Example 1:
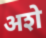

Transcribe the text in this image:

अशे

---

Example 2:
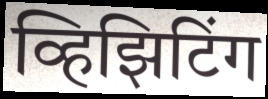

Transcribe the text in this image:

व्हिझिटिंग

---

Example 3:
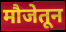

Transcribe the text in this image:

मौजेतून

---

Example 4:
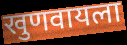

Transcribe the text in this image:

खुणवायला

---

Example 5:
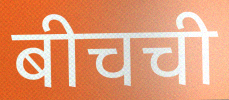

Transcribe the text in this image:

बीचची